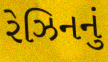
રેઝિનનું